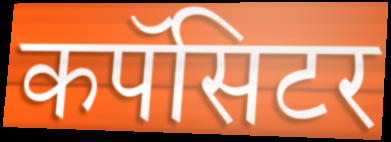
कपॅसिटर